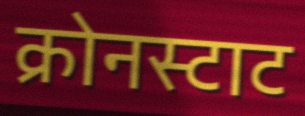
क्रोनस्टाट